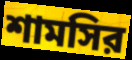
শামসির